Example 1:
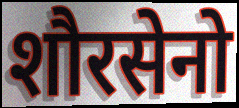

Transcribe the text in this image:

शौरसेनो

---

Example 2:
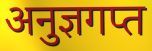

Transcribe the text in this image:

अनुज्ञगप्त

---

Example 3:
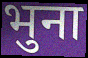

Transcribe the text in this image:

भुना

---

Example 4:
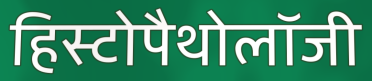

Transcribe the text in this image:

हिस्टोपैथोलॉजी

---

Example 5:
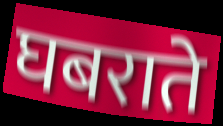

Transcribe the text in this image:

घबराते